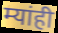
म्यांही